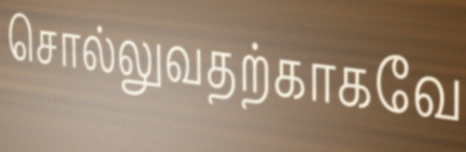
சொல்லுவதற்காகவே